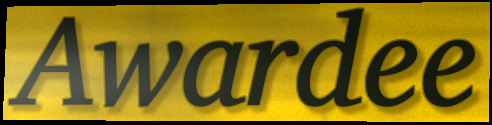
Awardee